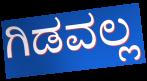
ಗಿಡವಲ್ಲ